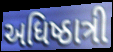
અધિષ્ઠાત્રી